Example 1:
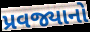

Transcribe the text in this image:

પ્રવજ્યાનો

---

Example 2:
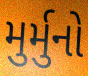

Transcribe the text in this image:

મુર્મુનો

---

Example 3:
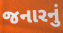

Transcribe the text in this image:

જનારનું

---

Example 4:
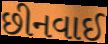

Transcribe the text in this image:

છીનવાઈ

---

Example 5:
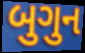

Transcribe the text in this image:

બુગુન